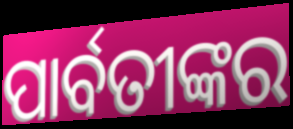
ପାର୍ବତୀଙ୍କର